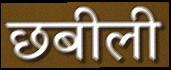
छबीली